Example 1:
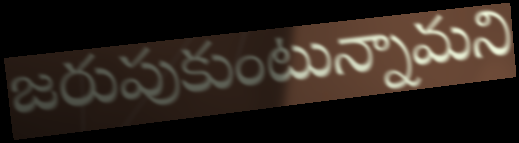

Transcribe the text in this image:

జరుపుకుంటున్నామని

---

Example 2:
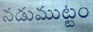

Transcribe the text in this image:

నడుముట్టం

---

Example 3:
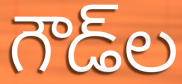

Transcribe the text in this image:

గౌడ్‌ల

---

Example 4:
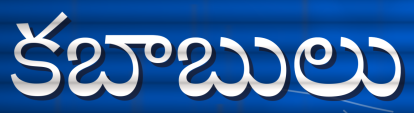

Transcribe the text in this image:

కబాబులు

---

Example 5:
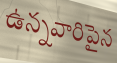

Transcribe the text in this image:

ఉన్నవారిపైన